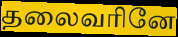
தலைவரினே